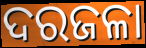
ଦରଜଳା